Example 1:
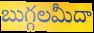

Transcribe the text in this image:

బుగ్గలమీదా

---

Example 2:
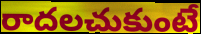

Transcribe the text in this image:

రాదలచుకుంటే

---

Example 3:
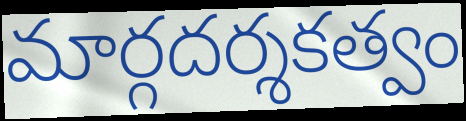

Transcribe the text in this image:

మార్గదర్శకత్వం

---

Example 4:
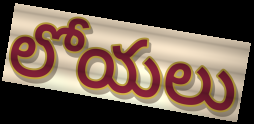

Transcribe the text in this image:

లోయలు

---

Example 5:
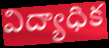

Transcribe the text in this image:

విద్యాధిక